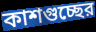
কাশগুচ্ছের